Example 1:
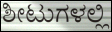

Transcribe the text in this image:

ಶೀಟುಗಳಲ್ಲಿ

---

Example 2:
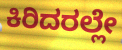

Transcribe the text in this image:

ಕಿರಿದರಲ್ಲೇ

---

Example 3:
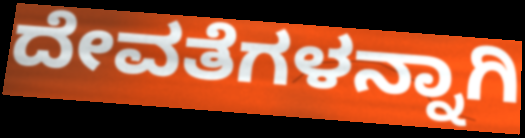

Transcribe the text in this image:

ದೇವತೆಗಳನ್ನಾಗಿ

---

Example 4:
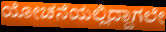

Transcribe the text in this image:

ಯೋಚನೆಯಲ್ಲಿದ್ದಾಗಲೇ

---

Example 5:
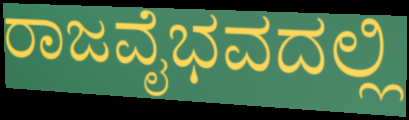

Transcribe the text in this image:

ರಾಜವೈಭವದಲ್ಲಿ